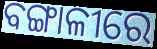
ବଙ୍ଗାଳୀରେ